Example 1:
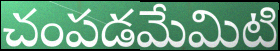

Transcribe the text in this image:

చంపడమేమిటి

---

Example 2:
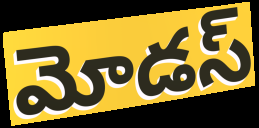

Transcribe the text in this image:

మోడస్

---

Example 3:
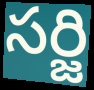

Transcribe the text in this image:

సర్జి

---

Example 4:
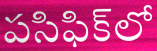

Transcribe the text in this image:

పసిఫిక్‌లో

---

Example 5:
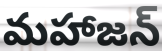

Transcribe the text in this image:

మహాజన్